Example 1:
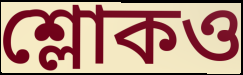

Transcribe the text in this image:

শ্লোকও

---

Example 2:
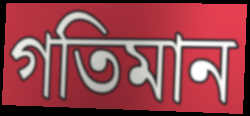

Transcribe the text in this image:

গতিমান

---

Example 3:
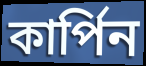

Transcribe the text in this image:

কার্পিন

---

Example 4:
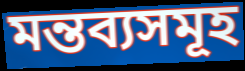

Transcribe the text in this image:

মন্তব্যসমূহ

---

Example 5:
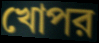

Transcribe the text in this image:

খোপর